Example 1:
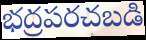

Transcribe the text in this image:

భద్రపరచబడి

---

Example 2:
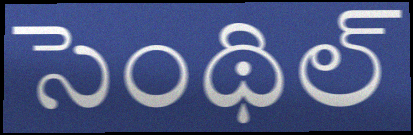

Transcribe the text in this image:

సెంథిల్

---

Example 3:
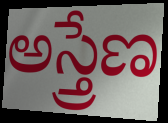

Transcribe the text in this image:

అస్త్రేణ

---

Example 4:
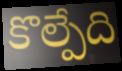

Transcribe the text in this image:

కొల్పేది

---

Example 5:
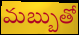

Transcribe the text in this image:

మబ్బుతో